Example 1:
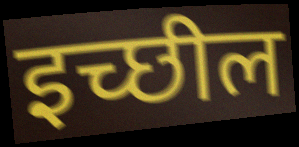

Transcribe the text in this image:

इच्छील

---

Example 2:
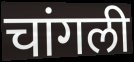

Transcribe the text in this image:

चांगली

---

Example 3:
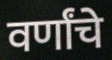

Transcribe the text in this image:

वर्णांचे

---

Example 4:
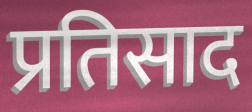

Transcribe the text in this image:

प्रतिसाद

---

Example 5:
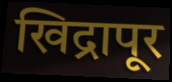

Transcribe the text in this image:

खिद्रापूर